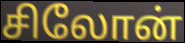
சிலோன்